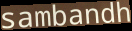
sambandh